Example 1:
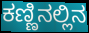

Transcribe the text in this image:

ಕಣ್ಣಿನಲ್ಲಿನ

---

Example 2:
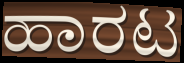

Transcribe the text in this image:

ಹಾರಟ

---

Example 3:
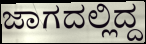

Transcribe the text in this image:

ಜಾಗದಲ್ಲಿದ್ದ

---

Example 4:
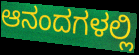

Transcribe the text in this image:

ಆನಂದಗಳಲ್ಲಿ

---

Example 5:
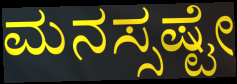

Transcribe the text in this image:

ಮನಸ್ಸಷ್ಟೇ